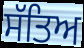
ਸੱਤਿਅ